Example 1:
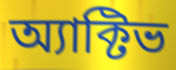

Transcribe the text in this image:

অ্যাক্টিভ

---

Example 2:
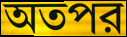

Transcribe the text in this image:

অতপর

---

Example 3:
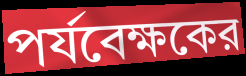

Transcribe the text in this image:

পর্যবেক্ষকের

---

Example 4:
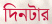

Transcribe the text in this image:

দিনটার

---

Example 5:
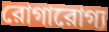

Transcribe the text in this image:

রোগারোগ্য